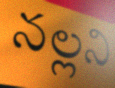
నల్లని